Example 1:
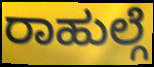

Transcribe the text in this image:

ರಾಹುಲ್ಗೆ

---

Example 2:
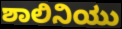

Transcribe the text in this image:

ಶಾಲಿನಿಯು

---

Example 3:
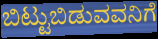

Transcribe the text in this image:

ಬಿಟ್ಟುಬಿಡುವವನಿಗೆ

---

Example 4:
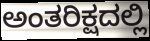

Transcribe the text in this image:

ಅಂತರಿಕ್ಷದಲ್ಲಿ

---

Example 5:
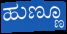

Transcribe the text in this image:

ಹುಣ್ಣೂ